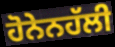
ਹੋਨੇਨਹੱਲੀ